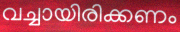
വച്ചായിരിക്കണം